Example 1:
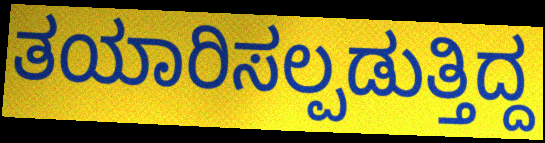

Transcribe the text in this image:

ತಯಾರಿಸಲ್ಪಡುತ್ತಿದ್ದ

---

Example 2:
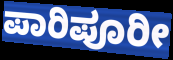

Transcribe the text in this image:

ಪಾರಿಪೂರೀ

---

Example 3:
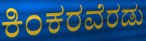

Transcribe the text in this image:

ಕಿಂಕರವೆರಡು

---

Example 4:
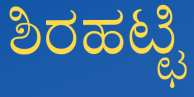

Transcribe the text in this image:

ಶಿರಹಟ್ಟಿ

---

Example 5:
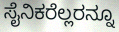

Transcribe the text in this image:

ಸೈನಿಕರೆಲ್ಲರನ್ನೂ